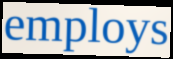
employs